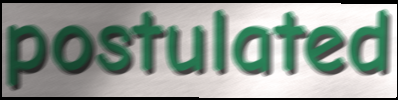
postulated